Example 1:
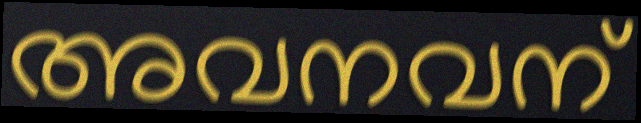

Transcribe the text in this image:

അവനവന്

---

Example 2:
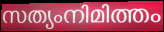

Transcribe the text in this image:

സത്യംനിമിത്തം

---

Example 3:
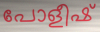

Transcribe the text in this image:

പോളീഷ്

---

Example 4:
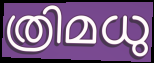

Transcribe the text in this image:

ത്രിമധു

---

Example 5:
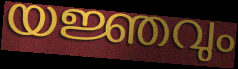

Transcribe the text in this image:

യജ്ഞവും